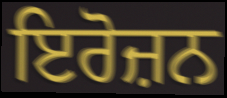
ਇਰੋਜ਼ਨ